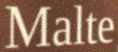
Malte